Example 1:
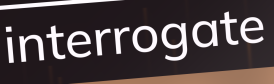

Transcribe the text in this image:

interrogate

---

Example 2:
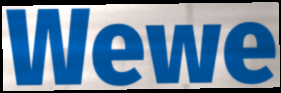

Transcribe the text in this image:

Wewe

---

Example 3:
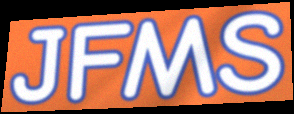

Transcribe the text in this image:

JFMS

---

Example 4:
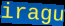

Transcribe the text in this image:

iragu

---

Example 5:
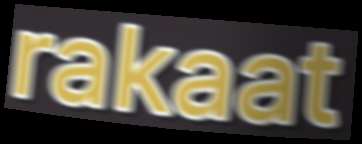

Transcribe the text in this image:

rakaat